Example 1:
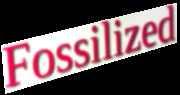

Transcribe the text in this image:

Fossilized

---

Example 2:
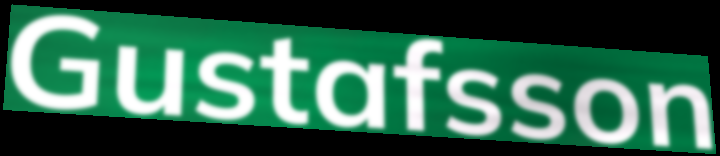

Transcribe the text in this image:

Gustafsson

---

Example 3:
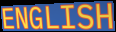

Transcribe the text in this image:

ENGLISH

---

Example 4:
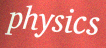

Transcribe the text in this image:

physics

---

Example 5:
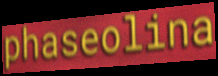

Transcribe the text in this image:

phaseolina